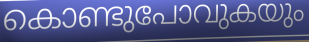
കൊണ്ടുപോവുകയും